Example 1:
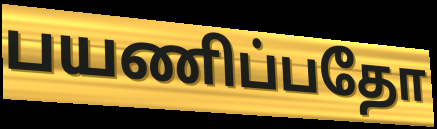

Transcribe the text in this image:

பயணிப்பதோ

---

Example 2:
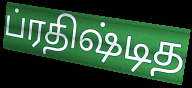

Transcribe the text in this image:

ப்ரதிஷ்டித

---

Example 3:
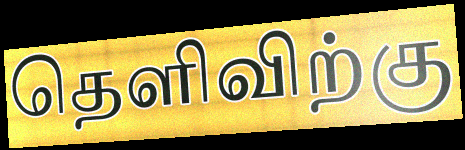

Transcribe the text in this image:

தெளிவிற்கு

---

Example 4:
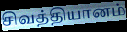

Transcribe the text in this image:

சிவத்தியானம்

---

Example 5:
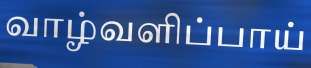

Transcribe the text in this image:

வாழ்வளிப்பாய்